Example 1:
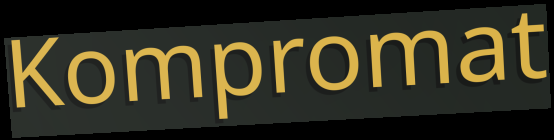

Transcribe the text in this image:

Kompromat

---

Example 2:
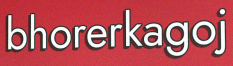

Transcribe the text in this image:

bhorerkagoj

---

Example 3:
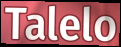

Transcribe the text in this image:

Talelo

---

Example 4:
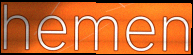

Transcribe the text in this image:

hemen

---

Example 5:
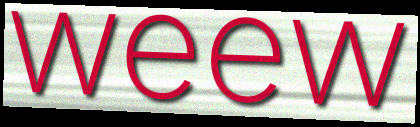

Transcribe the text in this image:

weew